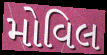
મોવિલ